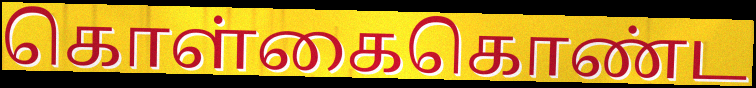
கொள்கைகொண்ட